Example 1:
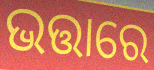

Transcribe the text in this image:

ଭତ୍ତାରେ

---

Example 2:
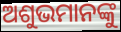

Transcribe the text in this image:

ଅଶୁଭମାନଙ୍କୁ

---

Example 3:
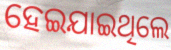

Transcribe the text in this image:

ହେଇଯାଇଥିଲେ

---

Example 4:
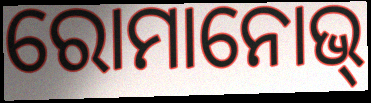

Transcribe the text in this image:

ରୋମାନୋଭ୍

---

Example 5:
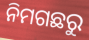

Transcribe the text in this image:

ନିମଗଛରୁ